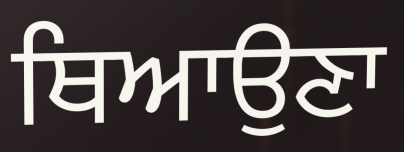
ਥਿਆਉਣਾ